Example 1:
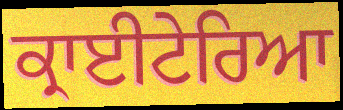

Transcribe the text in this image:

ਕ੍ਰਾਈਟੇਰਿਆ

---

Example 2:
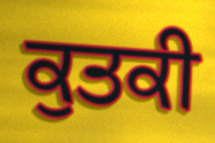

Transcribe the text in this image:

ਕੁਤਕੀ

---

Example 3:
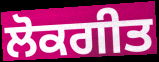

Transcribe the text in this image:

ਲੋਕਗੀਤ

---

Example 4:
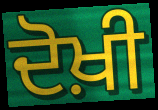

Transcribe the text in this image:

ਦੋਖ਼ੀ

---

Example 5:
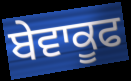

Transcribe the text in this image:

ਬੇਵਾਕੂਫ